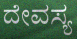
ದೇವಸ್ಯ